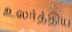
உலர்த்திய